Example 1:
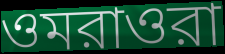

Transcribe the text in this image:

ওমরাওরা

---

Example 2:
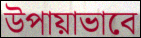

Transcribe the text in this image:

উপায়াভাবে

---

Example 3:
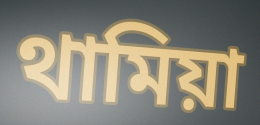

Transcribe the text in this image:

থামিয়া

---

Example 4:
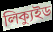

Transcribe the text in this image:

লিক্যুইড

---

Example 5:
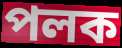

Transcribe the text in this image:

পলক